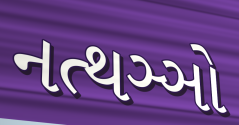
નત્થઞ્ઞો